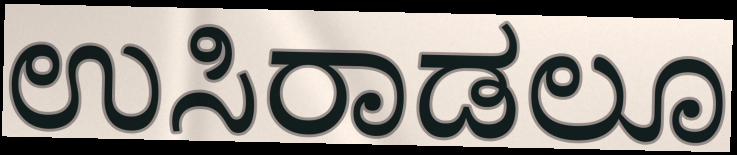
ಉಸಿರಾಡಲೂ